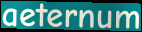
aeternum